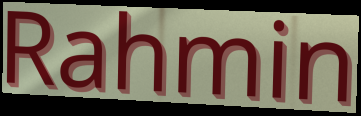
Rahmin